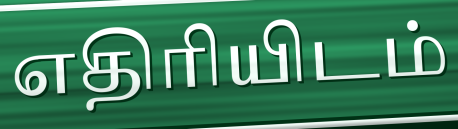
எதிரியிடம்